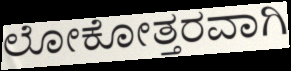
ಲೋಕೋತ್ತರವಾಗಿ